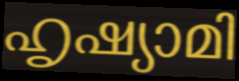
ഹൃഷ്യാമി